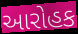
આરોહક